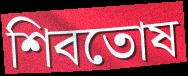
শিবতোষ